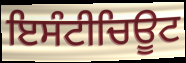
ਇਸੰਟੀਚਿਊਟ